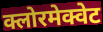
क्लोरमेक्वेट